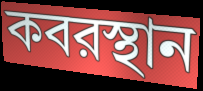
কবরস্থান